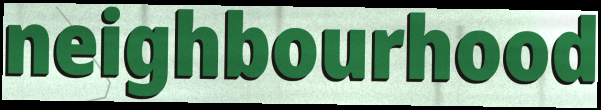
neighbourhood